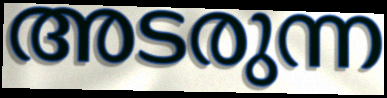
അടരുന്ന